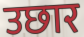
उछार